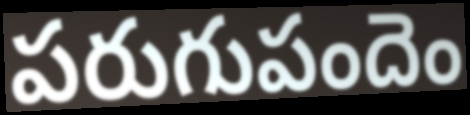
పరుగుపందెం